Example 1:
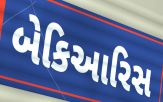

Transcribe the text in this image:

બેકિઆરિસ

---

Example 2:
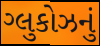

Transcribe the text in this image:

ગ્લુકોઝનું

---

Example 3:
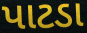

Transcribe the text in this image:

પાટડા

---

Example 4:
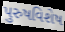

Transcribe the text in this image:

પુરુષવિશેષ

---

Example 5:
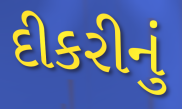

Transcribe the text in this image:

દીકરીનું